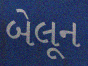
બેલૂન